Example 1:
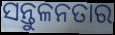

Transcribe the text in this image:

ସନ୍ତୁଳନତାର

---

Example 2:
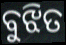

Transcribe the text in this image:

ବୁଝିତ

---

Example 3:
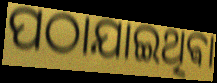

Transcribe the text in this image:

ପଠାଯାଇଥିଵା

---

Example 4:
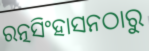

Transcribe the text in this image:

ରତ୍ନସିଂହାସନଠାରୁ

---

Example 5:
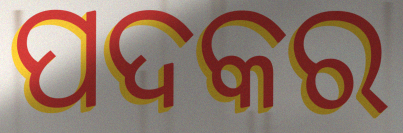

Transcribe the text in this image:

ପଦକର